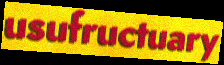
usufructuary